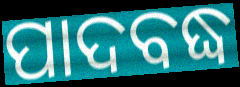
ପାଦବଦ୍ଧ